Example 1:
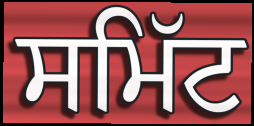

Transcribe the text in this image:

ਸਮਿੱਟ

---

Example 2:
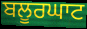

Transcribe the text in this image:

ਬਲੂਰਘਾਟ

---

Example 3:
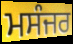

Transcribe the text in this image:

ਮਸੰਜਰ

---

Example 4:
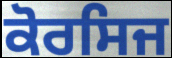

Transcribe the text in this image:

ਕੋਰਸਿਜ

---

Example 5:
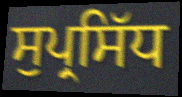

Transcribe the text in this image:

ਸੁਪ੍ਰਸਿੱਧ